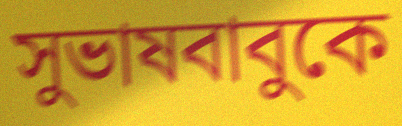
সুভাষবাবুকে